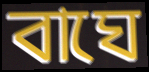
বাঘে